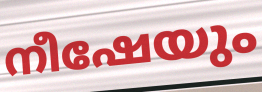
നീഷേയും